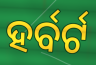
ହର୍ବର୍ଟ